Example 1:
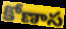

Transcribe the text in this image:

కోణాస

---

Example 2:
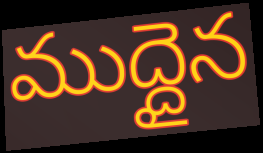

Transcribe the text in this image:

ముద్దైన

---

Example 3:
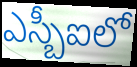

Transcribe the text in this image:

ఎస్బీఐలో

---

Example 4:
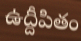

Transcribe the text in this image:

ఉద్దీపితం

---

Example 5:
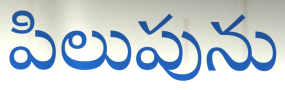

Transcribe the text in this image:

పిలుపును